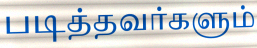
படித்தவர்களும்